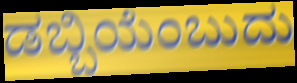
ಡಬ್ಬಿಯೆಂಬುದು